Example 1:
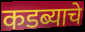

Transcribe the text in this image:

कडब्याचे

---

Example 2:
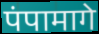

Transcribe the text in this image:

पंपामागे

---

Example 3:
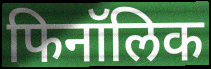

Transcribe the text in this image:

फिनॉलिक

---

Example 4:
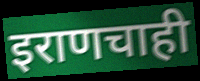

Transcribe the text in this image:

इराणचाही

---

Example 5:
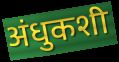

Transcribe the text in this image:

अंधुकशी